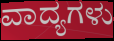
ವಾದ್ಯಗಳು